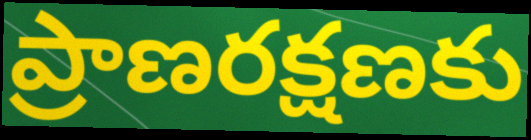
ప్రాణరక్షణకు